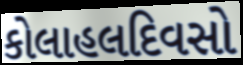
કોલાહલદિવસો